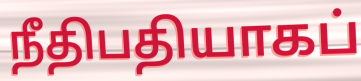
நீதிபதியாகப்